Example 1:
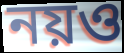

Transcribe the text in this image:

নয়ও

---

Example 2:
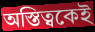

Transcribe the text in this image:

অস্তিত্বকেই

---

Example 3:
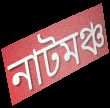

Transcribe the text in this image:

নাটমঞ্চ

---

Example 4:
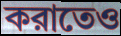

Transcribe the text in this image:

করাতেও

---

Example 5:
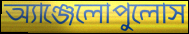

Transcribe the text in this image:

অ্যাঞ্জেলোপুলোস